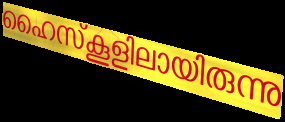
ഹൈസ്‌കൂളിലായിരുന്നു